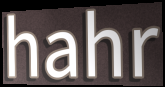
hahr